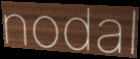
nodal